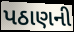
પઠાણની